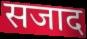
सजाद